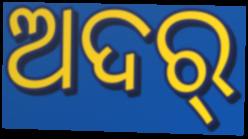
ଅଦର୍